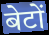
बेटों